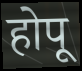
होपू